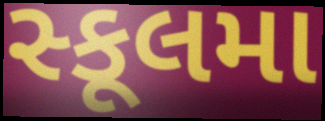
સ્કૂલમા